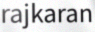
rajkaran